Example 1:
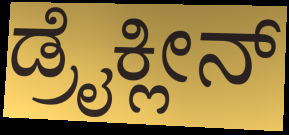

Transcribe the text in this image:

ಡ್ರೈಕ್ಲೀನ್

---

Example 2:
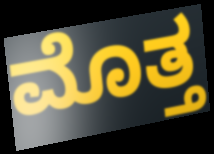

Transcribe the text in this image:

ಮೊತ್ತ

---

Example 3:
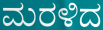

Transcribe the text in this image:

ಮರಳಿದ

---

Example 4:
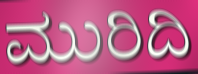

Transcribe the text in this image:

ಮುರಿದಿ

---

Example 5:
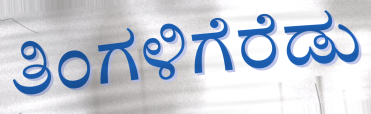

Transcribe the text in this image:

ತಿಂಗಳಿಗೆರೆಡು